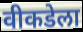
वीकडेला